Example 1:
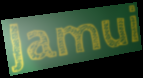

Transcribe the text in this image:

Jamui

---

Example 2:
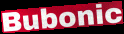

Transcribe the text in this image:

Bubonic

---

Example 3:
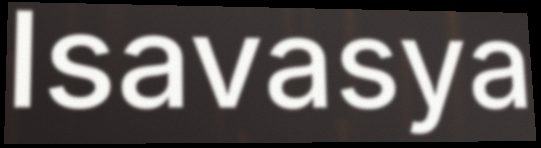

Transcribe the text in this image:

Isavasya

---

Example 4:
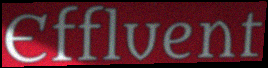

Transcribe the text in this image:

Effluent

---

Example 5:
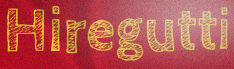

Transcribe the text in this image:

Hiregutti